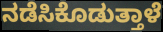
ನಡೆಸಿಕೊಡುತ್ತಾಳೆ